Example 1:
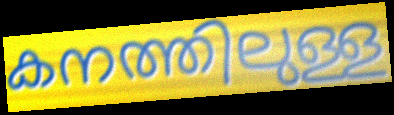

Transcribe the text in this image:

കനത്തിലുള്ള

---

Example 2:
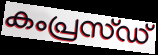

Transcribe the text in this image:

കംപ്രസ്ഡ്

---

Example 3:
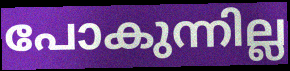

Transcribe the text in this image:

പോകുന്നില്ല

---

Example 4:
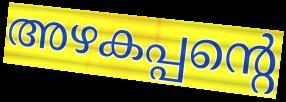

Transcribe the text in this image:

അഴകപ്പന്റെ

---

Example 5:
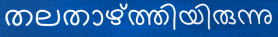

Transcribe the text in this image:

തലതാഴ്ത്തിയിരുന്നു